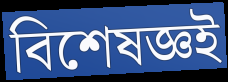
বিশেষজ্ঞই